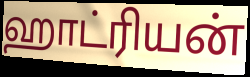
ஹாட்ரியன்